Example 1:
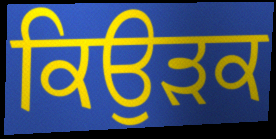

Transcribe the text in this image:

ਕਿਉੜਕ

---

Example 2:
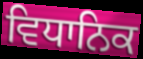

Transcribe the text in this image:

ਵਿਧਾਨਿਕ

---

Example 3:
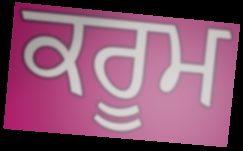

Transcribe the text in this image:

ਕਰੂਮ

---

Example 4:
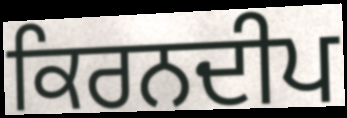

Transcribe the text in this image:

ਕਿਰਨਦੀਪ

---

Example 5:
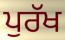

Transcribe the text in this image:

ਪੁਰੱਖ